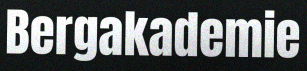
Bergakademie